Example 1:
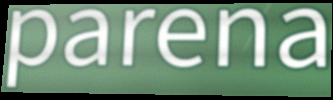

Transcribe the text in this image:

parena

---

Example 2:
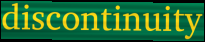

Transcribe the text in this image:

discontinuity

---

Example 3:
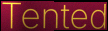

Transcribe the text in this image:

Tented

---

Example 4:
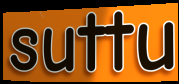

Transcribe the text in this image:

suttu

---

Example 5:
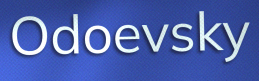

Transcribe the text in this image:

Odoevsky